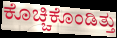
ಕೊಚ್ಚಿಕೊಂಡಿತ್ತು